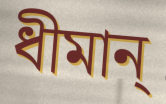
ধীমান্